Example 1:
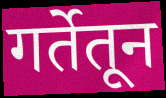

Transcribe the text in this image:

गर्तेतून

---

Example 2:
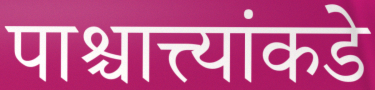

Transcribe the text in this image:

पाश्चात्त्यांकडे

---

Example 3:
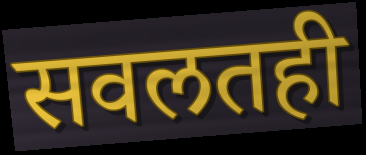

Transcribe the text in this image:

सवलतही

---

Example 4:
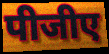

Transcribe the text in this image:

पीजीए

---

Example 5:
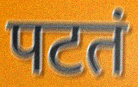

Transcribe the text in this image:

पटतं